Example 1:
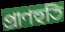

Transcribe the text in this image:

প্ৰাণহুতি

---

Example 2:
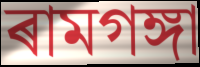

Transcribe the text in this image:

ৰামগঙ্গা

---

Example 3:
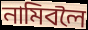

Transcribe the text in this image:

নামিবলৈ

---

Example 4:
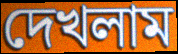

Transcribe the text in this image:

দেখলাম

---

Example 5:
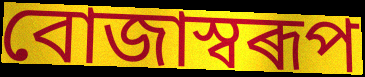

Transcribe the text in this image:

বোজাস্বৰূপ